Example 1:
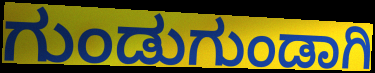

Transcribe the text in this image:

ಗುಂಡುಗುಂಡಾಗಿ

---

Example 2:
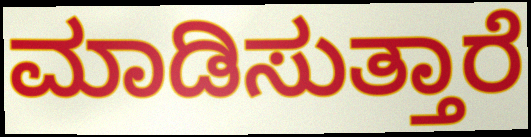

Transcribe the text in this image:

ಮಾಡಿಸುತ್ತಾರೆ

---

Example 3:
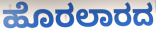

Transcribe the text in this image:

ಹೊರಲಾರದ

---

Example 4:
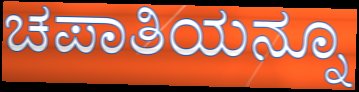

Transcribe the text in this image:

ಚಪಾತಿಯನ್ನೂ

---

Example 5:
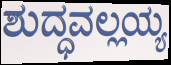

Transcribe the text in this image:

ಶುದ್ಧವಲ್ಲಯ್ಯ